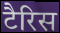
टैरिस